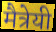
मैत्रेयी